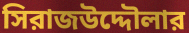
সিরাজউদ্দৌলার